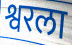
श्वरला